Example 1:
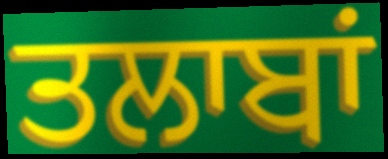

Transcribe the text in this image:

ਤਲਾਬਾਂ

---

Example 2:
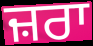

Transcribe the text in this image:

ਜ਼ਰਾ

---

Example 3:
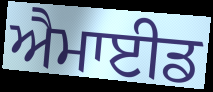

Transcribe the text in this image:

ਐਮਾਈਡ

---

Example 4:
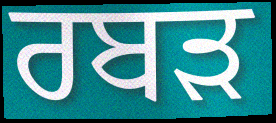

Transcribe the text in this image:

ਰਬੜ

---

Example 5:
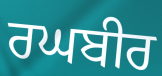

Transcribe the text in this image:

ਰਘਬੀਰ